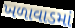
ખળાવાડમાં